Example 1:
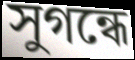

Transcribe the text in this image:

সুগন্ধে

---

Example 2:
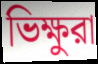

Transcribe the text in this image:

ভিক্ষুরা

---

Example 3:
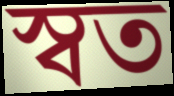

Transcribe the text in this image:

স্বত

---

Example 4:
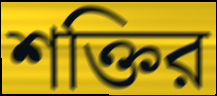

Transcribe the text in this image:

শক্তির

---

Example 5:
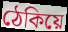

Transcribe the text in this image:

ঠেকিয়ে